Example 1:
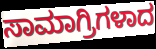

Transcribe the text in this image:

ಸಾಮಾಗ್ರಿಗಳಾದ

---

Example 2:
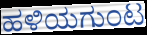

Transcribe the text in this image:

ಹಳಿಯಗುಂಟ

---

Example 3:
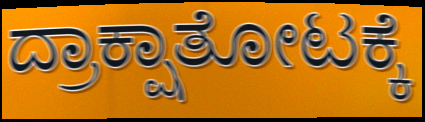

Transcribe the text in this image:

ದ್ರಾಕ್ಷಾತೋಟಕ್ಕೆ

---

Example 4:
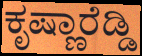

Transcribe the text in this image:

ಕೃಷ್ಣಾರೆಡ್ಡಿ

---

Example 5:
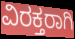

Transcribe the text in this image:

ವಿರಕ್ತರಾಗಿ